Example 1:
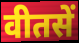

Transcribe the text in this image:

वीतसें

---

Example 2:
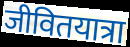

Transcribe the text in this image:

जीवितयात्रा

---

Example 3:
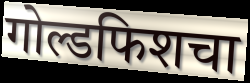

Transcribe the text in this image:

गोल्डफिशचा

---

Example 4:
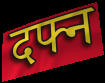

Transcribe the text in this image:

दफ्न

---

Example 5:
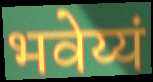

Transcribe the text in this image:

भवेय्यं